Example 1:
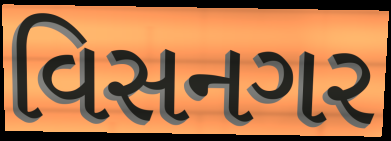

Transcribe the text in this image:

વિસનગર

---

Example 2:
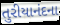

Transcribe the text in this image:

તુરીયાનંદના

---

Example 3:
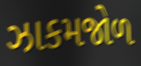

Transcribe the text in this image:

ઝાકમજોળ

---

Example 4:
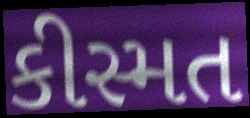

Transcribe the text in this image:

કીસ્મત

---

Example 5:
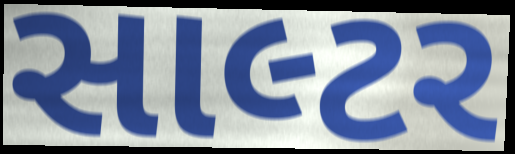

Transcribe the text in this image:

સાલ્ટર